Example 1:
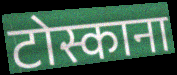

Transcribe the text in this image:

टोस्काना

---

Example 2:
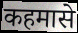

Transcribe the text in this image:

कहमासे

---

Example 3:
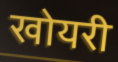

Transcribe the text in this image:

खोयरी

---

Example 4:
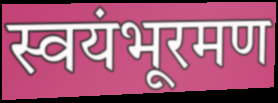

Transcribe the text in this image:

स्वयंभूरमण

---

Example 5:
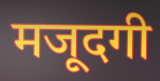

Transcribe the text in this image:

मजूदगी